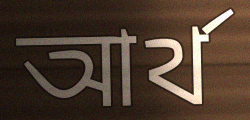
আর্থ